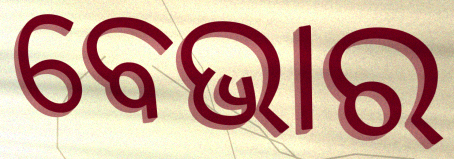
ବେଭାର